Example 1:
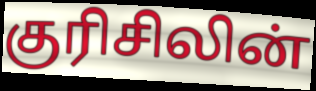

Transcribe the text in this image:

குரிசிலின்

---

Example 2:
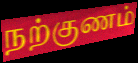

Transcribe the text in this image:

நற்குணம்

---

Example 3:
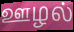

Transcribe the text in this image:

ஊழல்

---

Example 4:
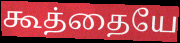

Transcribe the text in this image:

கூத்தையே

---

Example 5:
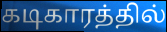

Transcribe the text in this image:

கடிகாரத்தில்